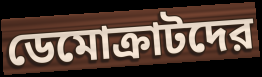
ডেমোক্রাটদের